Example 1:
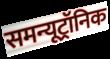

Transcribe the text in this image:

समन्यूट्रॉनिक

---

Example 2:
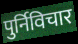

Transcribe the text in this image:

पुर्निविचार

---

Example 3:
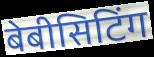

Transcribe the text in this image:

बेबीसिटिंग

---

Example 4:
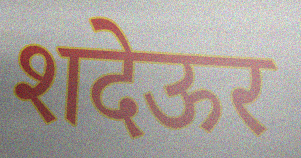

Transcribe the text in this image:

शदेऊर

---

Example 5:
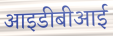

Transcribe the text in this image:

आइडीबीआई